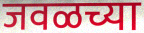
जवळच्या